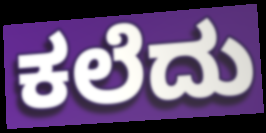
ಕಲೆದು